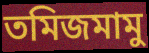
তমিজমামু